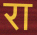
रा